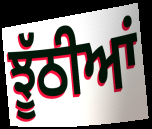
ਝੂੱਠੀਆਂ